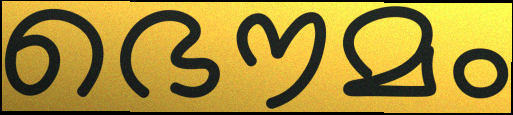
ഭൌമം